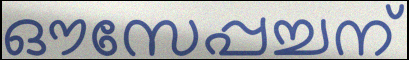
ഔസേപ്പച്ചന്